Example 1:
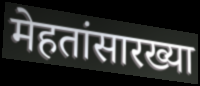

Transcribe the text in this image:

मेहतांसारख्या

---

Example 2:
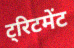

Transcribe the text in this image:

ट्रिटमेंट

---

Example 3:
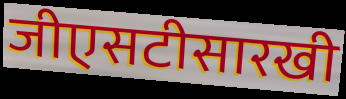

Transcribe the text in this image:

जीएसटीसारखी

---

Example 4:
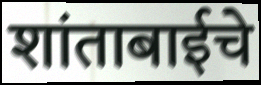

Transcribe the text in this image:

शांताबाईचे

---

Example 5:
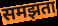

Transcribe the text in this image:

समझता